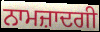
ਨਾਮਜ਼ਾਦਗੀ